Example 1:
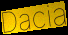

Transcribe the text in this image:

Dacia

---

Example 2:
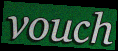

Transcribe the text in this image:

vouch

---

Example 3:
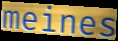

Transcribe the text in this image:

meines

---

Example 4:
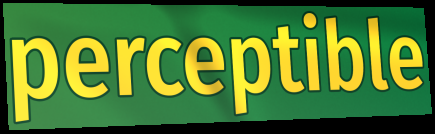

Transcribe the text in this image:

perceptible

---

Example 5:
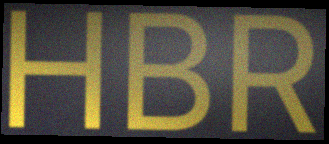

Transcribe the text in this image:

HBR